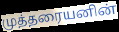
முத்தரையனின்